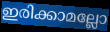
ഇരിക്കാമല്ലോ